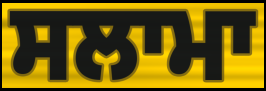
ਸਲਾਮਾ